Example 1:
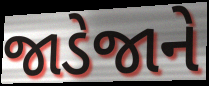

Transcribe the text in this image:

જાડેજાને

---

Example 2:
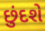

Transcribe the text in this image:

છુંદશે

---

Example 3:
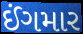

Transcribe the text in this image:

ઈંગમાર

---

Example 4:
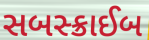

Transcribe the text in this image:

સબસ્ક્રાઈબ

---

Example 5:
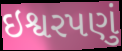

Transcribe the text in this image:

ઇશ્વરપણું